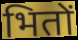
भितों